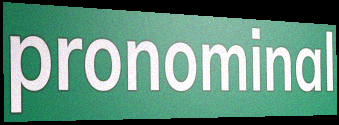
pronominal